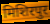
मिशिरपुर